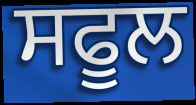
ਸਫੂਲ